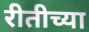
रीतीच्या